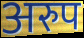
अरुप